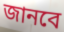
জানবে